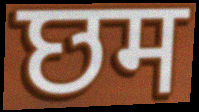
छम